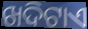
ଖଦିଟାଏ